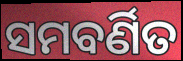
ସମବର୍ଣିତ